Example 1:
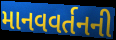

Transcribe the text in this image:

માનવવર્તનની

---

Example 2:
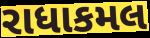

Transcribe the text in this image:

રાધાકમલ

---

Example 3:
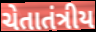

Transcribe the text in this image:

ચેતાતંત્રીય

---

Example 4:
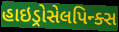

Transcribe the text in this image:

હાઇડ્રોસેલપિન્ક્સ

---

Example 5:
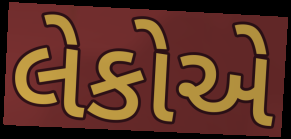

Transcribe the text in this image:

લેકોએ